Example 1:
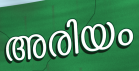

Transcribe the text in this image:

അരിയം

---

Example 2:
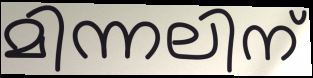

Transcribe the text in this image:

മിന്നലിന്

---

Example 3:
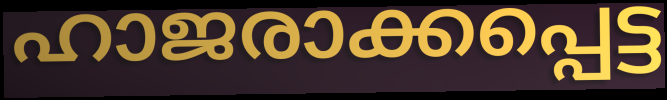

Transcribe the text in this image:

ഹാജരാക്കപ്പെട്ട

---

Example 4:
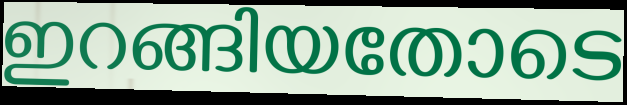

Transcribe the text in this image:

ഇറങ്ങിയതോടെ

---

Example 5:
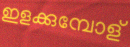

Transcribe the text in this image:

ഇളക്കുമ്പോള്